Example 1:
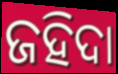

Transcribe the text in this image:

ଜହିଦା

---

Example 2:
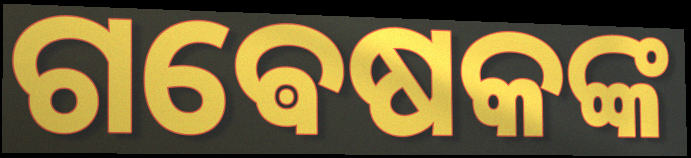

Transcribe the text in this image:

ଗଵେଷକଙ୍କ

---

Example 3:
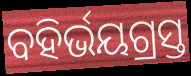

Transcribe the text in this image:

ବହିର୍ଭୟଗ୍ରସ୍ତ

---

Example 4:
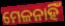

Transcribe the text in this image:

ମେଳନାହିଁ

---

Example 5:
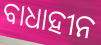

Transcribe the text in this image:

ବାଧାହୀନ